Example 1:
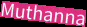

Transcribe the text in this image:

Muthanna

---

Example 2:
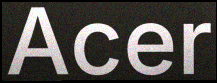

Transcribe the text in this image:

Acer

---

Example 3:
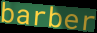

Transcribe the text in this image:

barber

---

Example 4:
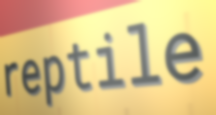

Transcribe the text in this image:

reptile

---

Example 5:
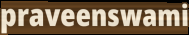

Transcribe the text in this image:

praveenswami